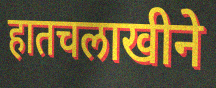
हातचलाखीने